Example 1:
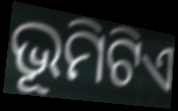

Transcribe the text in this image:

ଭୂମିଟିଏ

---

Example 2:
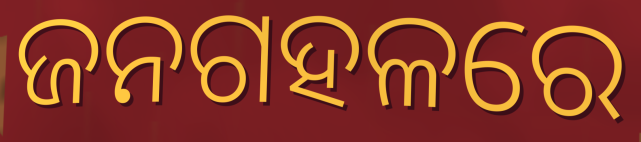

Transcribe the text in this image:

ଜନଗହଳରେ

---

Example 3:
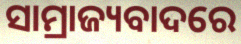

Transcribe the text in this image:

ସାମ୍ରାଜ୍ୟବାଦରେ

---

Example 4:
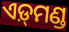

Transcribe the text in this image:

ଏଡ଼୍‌ମଣ୍ଡ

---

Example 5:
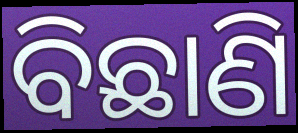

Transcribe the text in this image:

ବିଛାଣି